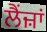
ਲੈਂਜ਼ਾਂ